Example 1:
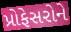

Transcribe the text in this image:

પ્રોફેસરોને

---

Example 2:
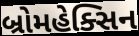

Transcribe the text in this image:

બ્રોમહેક્સિન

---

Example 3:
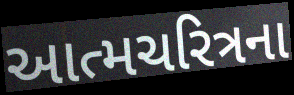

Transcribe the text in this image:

આત્મચરિત્રના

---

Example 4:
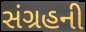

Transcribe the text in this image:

સંગ્રહની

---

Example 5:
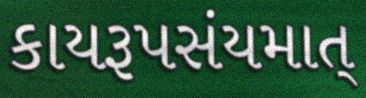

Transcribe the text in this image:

કાયરૂપસંયમાત્